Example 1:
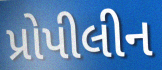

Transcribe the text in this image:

પ્રોપીલીન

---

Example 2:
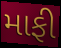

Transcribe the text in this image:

માફી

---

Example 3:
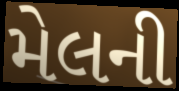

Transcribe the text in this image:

મેલની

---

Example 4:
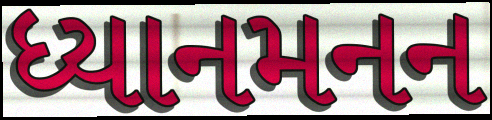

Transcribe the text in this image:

ધ્યાનમનન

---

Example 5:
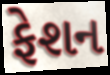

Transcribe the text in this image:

ફેશન